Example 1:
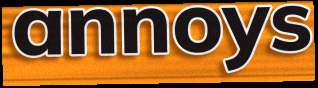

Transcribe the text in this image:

annoys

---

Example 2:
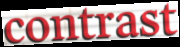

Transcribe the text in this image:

contrast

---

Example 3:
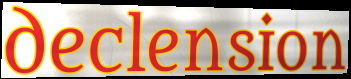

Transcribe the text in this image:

declension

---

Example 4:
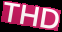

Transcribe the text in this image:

THD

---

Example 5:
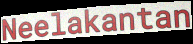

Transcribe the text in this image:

Neelakantan